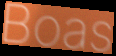
Boas